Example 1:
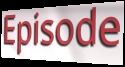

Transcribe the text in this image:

Episode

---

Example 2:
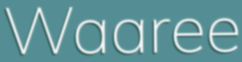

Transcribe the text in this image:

Waaree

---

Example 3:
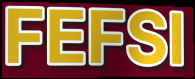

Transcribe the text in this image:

FEFSI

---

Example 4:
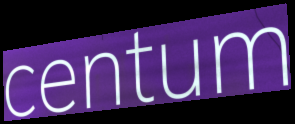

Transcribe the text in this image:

centum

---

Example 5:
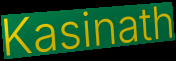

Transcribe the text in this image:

Kasinath